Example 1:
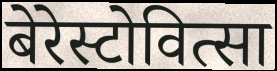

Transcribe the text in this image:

बेरेस्टोवित्सा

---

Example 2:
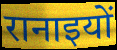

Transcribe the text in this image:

रानाइयों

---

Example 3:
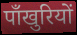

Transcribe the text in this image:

पाँखुरियों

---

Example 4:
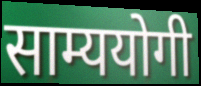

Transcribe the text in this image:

साम्ययोगी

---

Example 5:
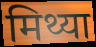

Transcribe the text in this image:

मिथ्या